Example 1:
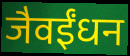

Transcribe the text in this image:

जैवईंधन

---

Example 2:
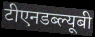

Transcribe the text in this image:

टीएनडब्ल्यूबी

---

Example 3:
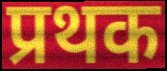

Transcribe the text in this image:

प्रथक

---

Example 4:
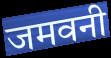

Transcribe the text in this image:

जमवनी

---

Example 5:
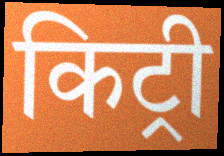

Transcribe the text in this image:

किट्री